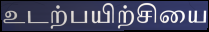
உடற்பயிற்சியை